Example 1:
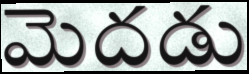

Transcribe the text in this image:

మెదడు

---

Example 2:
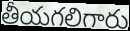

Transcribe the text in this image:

తీయగలిగారు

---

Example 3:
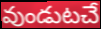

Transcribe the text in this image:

వుండుటచే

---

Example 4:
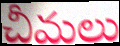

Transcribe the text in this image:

చీమలు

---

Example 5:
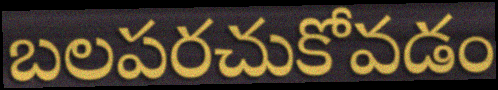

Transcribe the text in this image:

బలపరచుకోవడం